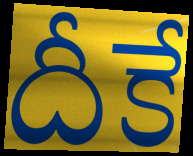
దీకే